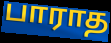
பாராத